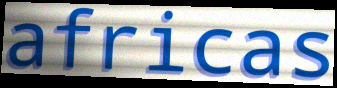
africas